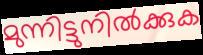
മുന്നിട്ടുനിൽക്കുക